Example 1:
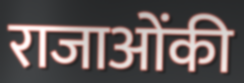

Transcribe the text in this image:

राजाओंकी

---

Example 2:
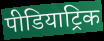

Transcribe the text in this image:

पीडियाट्रिक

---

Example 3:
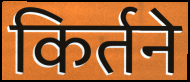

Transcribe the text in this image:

किर्तने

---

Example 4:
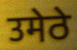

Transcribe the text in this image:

उमेठे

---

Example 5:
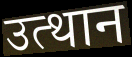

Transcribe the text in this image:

उत्थान